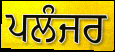
ਪਲੰਜਰ